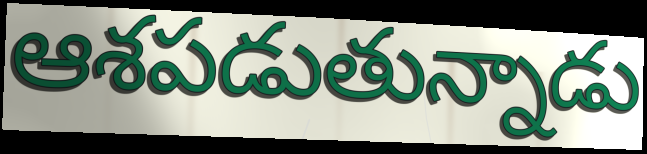
ఆశపడుతున్నాడు